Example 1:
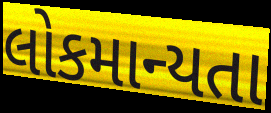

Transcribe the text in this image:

લોકમાન્યતા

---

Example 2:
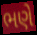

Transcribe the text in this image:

ભણે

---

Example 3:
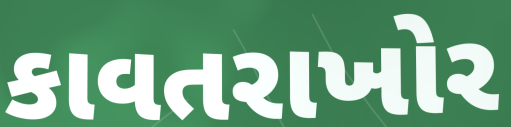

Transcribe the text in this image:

કાવતરાખોર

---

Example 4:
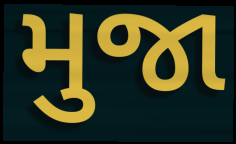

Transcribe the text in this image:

મુજા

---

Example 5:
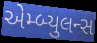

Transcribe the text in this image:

એમ્બ્યુલન્સ